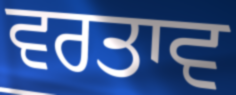
ਵਰਤਾਵ